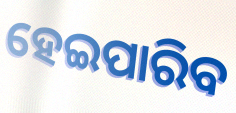
ହେଇପାରିବ